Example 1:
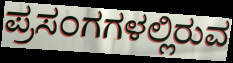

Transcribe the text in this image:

ಪ್ರಸಂಗಗಳಲ್ಲಿರುವ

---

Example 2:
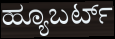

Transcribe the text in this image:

ಹ್ಯೂಬರ್ಟ್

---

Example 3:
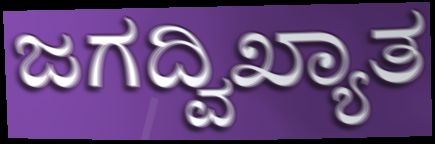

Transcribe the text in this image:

ಜಗದ್ವಿಖ್ಯಾತ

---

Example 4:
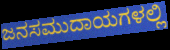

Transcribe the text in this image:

ಜನಸಮುದಾಯಗಳಲ್ಲಿ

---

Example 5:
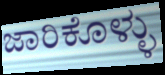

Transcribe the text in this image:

ಜಾರಿಕೊಳ್ಳು